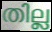
തില്ല